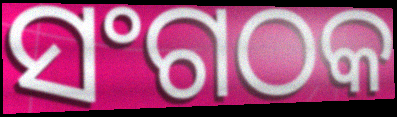
ସଂଗଠକ